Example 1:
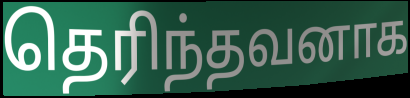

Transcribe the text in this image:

தெரிந்தவனாக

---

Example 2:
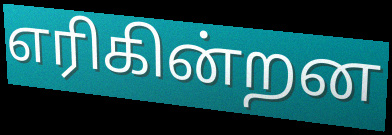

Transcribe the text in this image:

எரிகின்றன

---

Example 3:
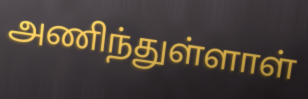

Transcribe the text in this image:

அணிந்துள்ளாள்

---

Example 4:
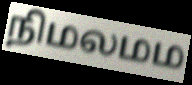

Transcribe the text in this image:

நிமலமம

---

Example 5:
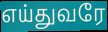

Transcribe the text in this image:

எய்துவரே